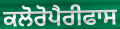
ਕਲੋਰੋਪੈਰੀਫਾਸ